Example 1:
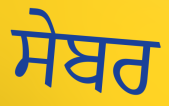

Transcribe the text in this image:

ਸੇਬਰ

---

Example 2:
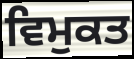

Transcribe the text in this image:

ਵਿਮੁਕਤ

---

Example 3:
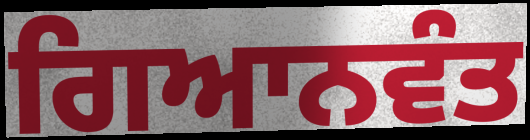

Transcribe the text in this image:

ਗਿਆਨਵੰਤ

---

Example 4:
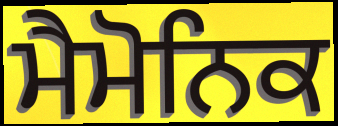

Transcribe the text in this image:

ਮੈਮੋਨਿਕ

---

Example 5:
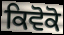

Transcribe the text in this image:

ਕਿਵੋਕੋ